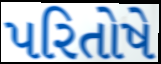
પરિતોષે